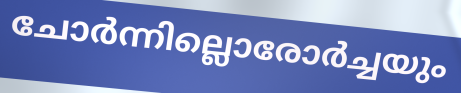
ചോർന്നില്ലൊരോർച്ചയും